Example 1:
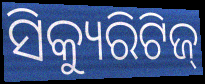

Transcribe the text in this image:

ସିକ୍ୟୁରିଟିଜ୍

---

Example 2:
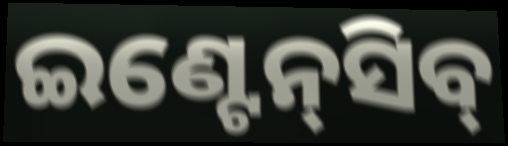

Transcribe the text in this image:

ଇଣ୍ଟେନ୍‍ସିବ୍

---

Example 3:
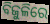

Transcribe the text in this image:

ବିଜୁଳିରେ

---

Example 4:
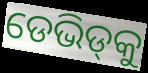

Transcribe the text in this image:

ଡେଭିଡ୍‍କୁ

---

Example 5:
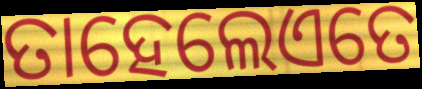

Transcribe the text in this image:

ତାହେଲେଏତେ